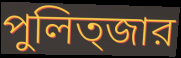
পুলিত্জার